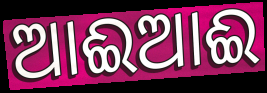
ଆଈଆଈ